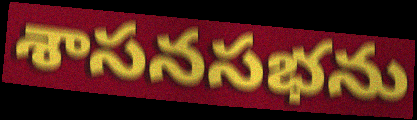
శాసనసభను